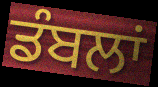
ਡੰਬਲਾਂ